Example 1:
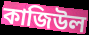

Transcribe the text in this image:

কাজিউল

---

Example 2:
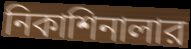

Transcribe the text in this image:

নিকাশিনালার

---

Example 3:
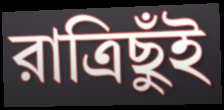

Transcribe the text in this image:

রাত্রিছুঁই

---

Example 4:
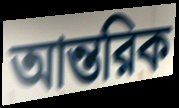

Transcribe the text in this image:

আন্তরিক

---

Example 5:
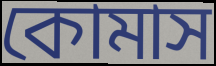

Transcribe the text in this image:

কোমাস